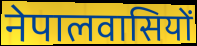
नेपालवासियों